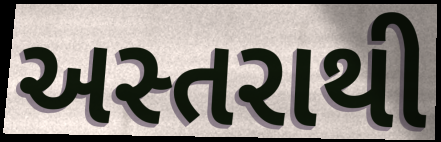
અસ્તરાથી